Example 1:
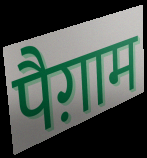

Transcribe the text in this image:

पैग़ाम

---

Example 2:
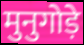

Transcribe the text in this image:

मुनुगोड़े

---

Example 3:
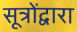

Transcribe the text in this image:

सूत्रोंद्वारा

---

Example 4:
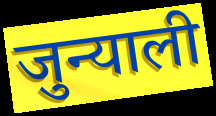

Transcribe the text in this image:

जुन्याली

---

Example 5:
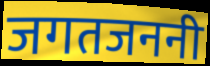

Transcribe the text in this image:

जगतजननी